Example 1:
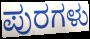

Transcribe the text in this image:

ಪುರಗಳು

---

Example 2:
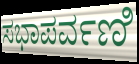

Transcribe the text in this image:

ಸಭಾಪರ್ವಣಿ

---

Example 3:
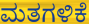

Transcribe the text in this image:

ಮತಗಳಿಕೆ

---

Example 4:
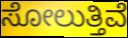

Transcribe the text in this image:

ಸೋಲುತ್ತಿವೆ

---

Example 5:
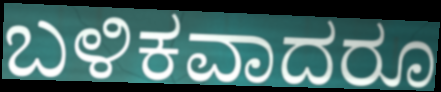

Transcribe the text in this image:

ಬಳಿಕವಾದರೂ